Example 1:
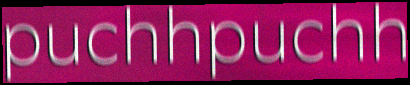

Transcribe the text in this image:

puchhpuchh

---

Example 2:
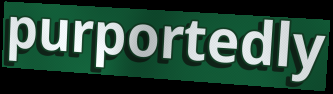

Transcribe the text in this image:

purportedly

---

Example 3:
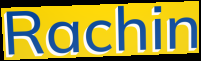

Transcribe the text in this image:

Rachin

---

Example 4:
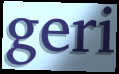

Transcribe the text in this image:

geri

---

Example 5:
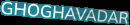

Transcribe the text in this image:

GHOGHAVADAR